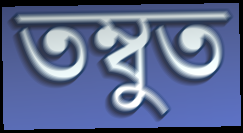
তম্বুত